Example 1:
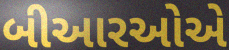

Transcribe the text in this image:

બીઆરઓએ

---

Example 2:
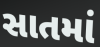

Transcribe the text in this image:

સાતમાં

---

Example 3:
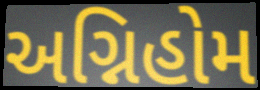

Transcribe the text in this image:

અગ્નિહોમ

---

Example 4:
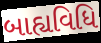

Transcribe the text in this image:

બાહ્યવિધિ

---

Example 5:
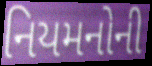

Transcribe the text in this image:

નિયમનોની